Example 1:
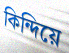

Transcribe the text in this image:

কিন্দিয়ে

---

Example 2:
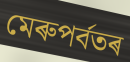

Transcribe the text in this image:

মেৰুপৰ্বতৰ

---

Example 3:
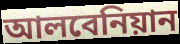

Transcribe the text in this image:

আলবেনিয়ান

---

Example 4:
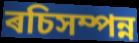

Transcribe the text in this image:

ৰচিসম্পন্ন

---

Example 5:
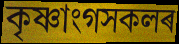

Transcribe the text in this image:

কৃষ্ণাংগসকলৰ